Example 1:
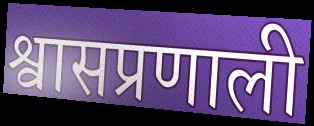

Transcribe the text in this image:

श्वासप्रणाली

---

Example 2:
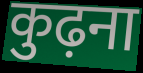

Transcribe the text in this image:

कुढ़ना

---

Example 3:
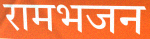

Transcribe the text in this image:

रामभजन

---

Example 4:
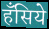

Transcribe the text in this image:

हँसिये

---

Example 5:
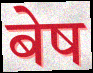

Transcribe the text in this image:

बेष